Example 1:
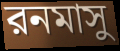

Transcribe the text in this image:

রনমাসু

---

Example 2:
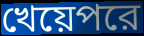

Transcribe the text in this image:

খেয়েপরে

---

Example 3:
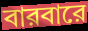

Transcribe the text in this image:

বারবারে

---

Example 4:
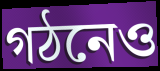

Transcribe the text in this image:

গঠনেও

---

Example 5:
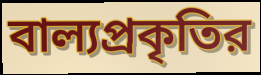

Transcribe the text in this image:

বাল্যপ্রকৃতির